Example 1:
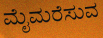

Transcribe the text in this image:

ಮೈಮರೆಸುವ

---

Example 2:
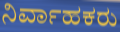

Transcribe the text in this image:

ನಿರ್ವಾಹಕರು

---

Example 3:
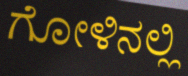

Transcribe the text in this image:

ಗೋಳಿನಲ್ಲಿ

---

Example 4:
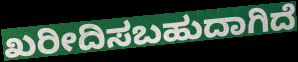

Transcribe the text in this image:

ಖರೀದಿಸಬಹುದಾಗಿದೆ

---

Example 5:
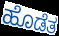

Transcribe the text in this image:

ಹೊಡೆತ